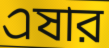
এষার